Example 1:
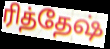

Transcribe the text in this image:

ரித்தேஷ்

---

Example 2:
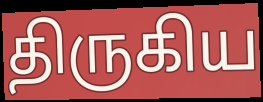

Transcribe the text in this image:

திருகிய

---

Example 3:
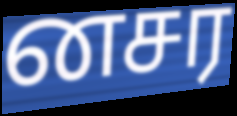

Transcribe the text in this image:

னசர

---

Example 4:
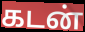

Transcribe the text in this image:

கடன்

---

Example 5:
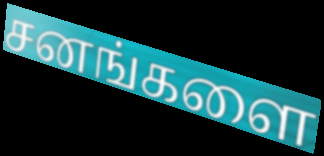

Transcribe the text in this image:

சனங்களை